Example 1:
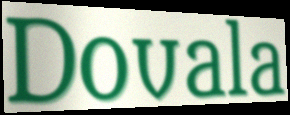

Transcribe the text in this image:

Douala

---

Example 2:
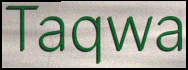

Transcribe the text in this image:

Taqwa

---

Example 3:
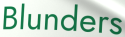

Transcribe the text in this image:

Blunders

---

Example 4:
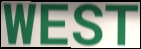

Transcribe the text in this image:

WEST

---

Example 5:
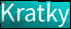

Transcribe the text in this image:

Kratky